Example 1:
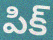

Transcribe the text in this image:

పిక్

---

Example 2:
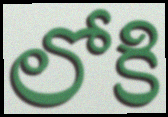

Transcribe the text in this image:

లోకి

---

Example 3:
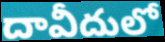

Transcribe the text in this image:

దావీదులో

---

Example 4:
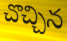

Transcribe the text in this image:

చొచ్చిన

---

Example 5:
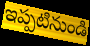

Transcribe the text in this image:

ఇప్పటినుండి